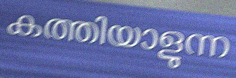
കത്തിയാളുന്ന